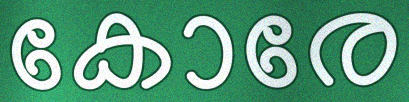
കോരേ